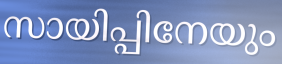
സായിപ്പിനേയും